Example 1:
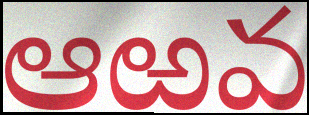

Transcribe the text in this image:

ఆఱవ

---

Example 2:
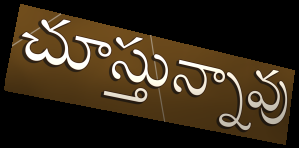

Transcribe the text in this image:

చూస్తున్నావు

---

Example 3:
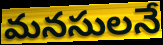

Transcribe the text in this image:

మనసులనే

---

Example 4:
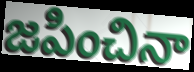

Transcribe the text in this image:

జపించినా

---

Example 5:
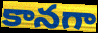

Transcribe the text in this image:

కానగా